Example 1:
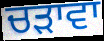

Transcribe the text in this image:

ਚੜਾਵਾ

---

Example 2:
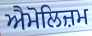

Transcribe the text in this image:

ਐਮੋਲਿਜ਼ਮ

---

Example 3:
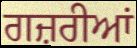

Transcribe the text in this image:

ਗਜ਼ਰੀਆਂ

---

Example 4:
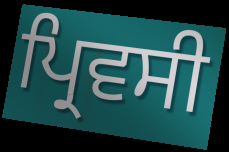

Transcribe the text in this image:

ਪ੍ਰਿਵਸੀ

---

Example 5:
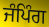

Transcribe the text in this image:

ਜੰਪਿੰਗ